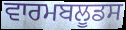
ਵਾਰਮਬਲੂਡਸ